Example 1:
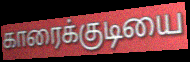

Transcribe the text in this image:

காரைக்குடியை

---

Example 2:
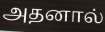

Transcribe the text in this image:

அதனால்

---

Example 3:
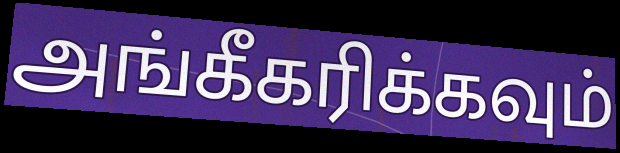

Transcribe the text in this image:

அங்கீகரிக்கவும்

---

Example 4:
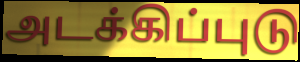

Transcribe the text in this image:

அடக்கிப்புடு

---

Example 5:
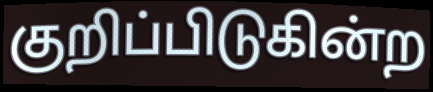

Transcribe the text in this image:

குறிப்பிடுகின்ற